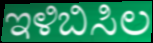
ಇಳಿಬಿಸಿಲ